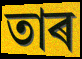
তাৰ